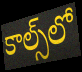
కాల్స్‌లో